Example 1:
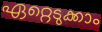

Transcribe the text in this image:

ഏറ്റെടുക്കാം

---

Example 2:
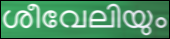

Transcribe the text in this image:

ശീവേലിയും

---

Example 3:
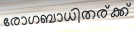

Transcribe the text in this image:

രോഗബാധിതര്ക്ക്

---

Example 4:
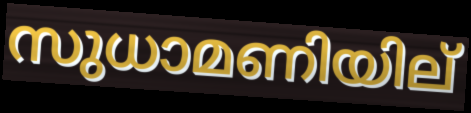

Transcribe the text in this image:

സുധാമണിയില്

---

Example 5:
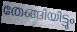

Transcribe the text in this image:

തേങ്ങിയിട്ടും